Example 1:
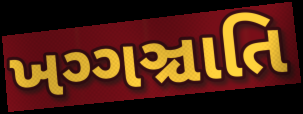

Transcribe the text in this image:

ખગ્ગઞ્ચાતિ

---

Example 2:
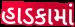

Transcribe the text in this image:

હાડકામાં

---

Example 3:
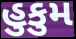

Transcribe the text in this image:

હુકુમ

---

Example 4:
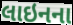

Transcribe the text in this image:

લાઇનના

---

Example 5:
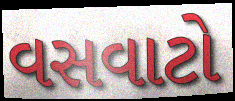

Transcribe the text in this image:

વસવાટો